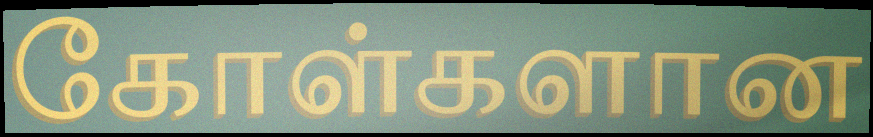
கோள்களான